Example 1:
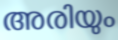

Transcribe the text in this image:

അരിയും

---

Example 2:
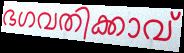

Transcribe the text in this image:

ഭഗവതിക്കാവ്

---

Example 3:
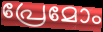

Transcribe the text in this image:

പ്രേമോം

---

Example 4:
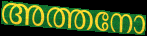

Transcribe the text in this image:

അത്തനോ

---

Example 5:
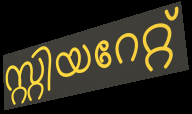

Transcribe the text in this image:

സ്റ്റിയറേറ്റ്